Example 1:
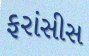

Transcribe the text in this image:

ફરાંસીસ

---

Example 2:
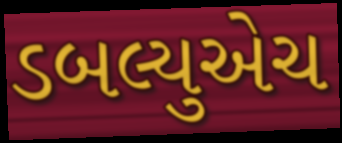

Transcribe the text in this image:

ડબલ્યુએચ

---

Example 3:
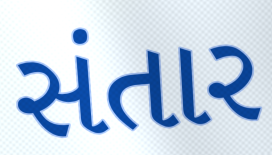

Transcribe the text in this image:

સંતાર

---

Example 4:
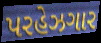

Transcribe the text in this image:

પરહેઝગાર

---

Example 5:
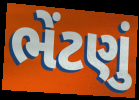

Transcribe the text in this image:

ભેંટણું